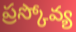
ప్రస్కోవ్య